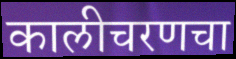
कालीचरणचा